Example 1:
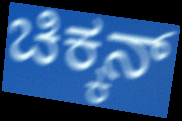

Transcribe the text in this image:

ಚಿಕ್ಕನ್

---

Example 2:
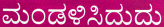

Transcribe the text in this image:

ಮಂಡಳಿಸಿದುದು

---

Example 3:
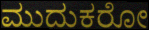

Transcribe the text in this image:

ಮುದುಕರೋ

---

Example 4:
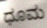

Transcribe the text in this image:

ಧೂಮ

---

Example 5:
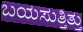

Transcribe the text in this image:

ಬಯಸುತ್ತಿತ್ತು